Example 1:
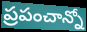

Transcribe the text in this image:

ప్రపంచాన్నో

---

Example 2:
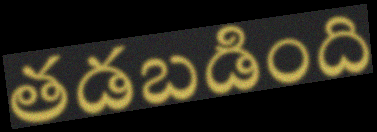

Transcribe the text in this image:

తడబడింది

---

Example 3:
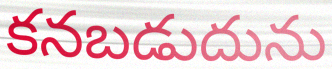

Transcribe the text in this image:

కనబడుదును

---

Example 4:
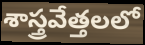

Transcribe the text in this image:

శాస్త్రవేత్తలలో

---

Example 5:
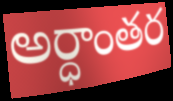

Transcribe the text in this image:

అర్ధాంతర